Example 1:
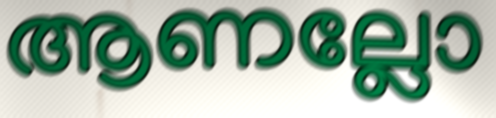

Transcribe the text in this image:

ആണല്ലോ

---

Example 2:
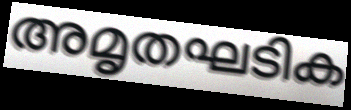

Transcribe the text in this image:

അമൃതഘടിക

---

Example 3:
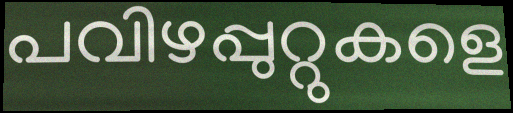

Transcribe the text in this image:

പവിഴപ്പുറ്റുകളെ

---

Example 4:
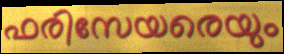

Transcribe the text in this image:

ഫരിസേയരെയും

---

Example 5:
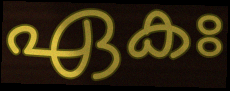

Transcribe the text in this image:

ഏകഃ